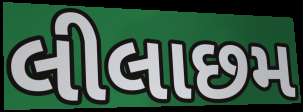
લીલાછમ